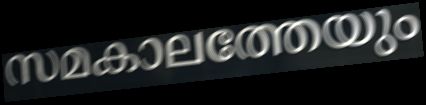
സമകാലത്തേയും